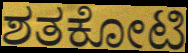
ಶತಕೋಟಿ